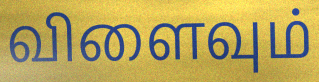
விளைவும்